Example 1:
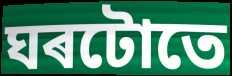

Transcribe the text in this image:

ঘৰটোতে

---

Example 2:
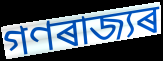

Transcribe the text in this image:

গণৰাজ্যৰ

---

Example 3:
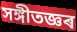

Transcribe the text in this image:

সঙ্গীতজ্ঞৰ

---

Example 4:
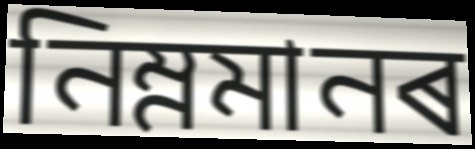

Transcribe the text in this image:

নিম্নমানৰ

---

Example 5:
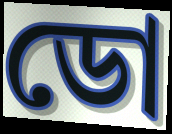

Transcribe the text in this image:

ডো